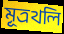
মূত্রথলি